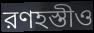
রণহস্তীও